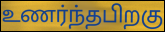
உணர்ந்தபிறகு